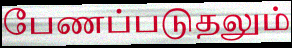
பேணப்படுதலும்